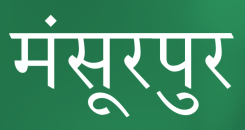
मंसूरपुर